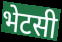
भेटसी